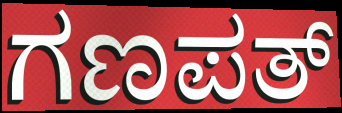
ಗಣಪತ್